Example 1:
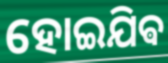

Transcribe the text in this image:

ହୋଇଯିଵ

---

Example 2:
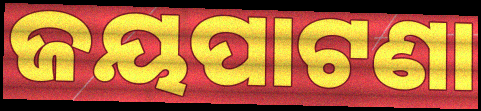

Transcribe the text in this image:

ଜୟପାଟଣା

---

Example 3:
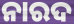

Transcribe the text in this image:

ନାରଦ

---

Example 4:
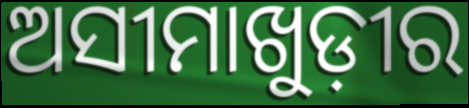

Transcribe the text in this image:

ଅସୀମାଖୁଡ଼ୀର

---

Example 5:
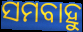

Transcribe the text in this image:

ସମବାହୁ